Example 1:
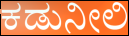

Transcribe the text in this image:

ಕಡುನೀಲಿ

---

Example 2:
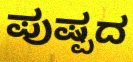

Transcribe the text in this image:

ಪುಷ್ಪದ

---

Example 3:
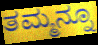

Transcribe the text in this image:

ತಮ್ಮನ್ನೂ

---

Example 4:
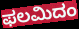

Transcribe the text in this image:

ಫಲಮಿದಂ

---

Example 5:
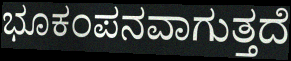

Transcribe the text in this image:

ಭೂಕಂಪನವಾಗುತ್ತದೆ